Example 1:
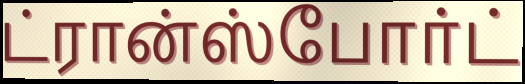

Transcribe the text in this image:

ட்ரான்ஸ்போர்ட்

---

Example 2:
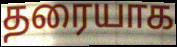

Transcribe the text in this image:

தரையாக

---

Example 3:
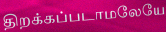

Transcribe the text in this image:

திறக்கப்படாமலேயே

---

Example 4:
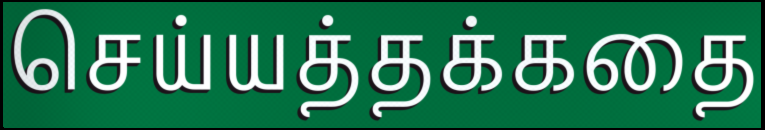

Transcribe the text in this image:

செய்யத்தக்கதை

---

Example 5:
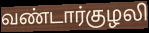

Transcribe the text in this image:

வண்டார்குழலி